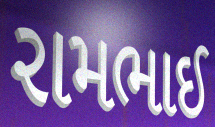
રામભાઈ